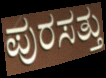
ಪುರಸತ್ತು